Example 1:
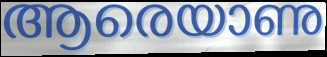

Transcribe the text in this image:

ആരെയാണു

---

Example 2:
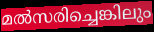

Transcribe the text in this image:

മൽസരിച്ചെങ്കിലും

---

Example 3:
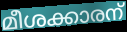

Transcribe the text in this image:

മീശക്കാരന്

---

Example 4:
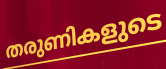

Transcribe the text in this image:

തരുണികളുടെ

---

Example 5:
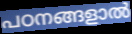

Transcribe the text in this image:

പഠനങ്ങളാൽ